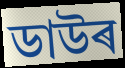
ডাউৰ